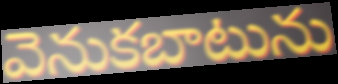
వెనుకబాటును